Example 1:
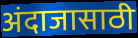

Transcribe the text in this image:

अंदाजासाठी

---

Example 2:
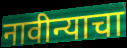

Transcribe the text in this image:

नावीन्याचा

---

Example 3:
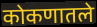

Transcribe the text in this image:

कोकणातले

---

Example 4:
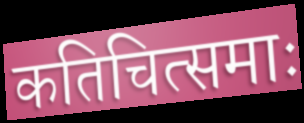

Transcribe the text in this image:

कतिचित्समाः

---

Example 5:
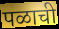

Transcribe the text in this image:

पळाची